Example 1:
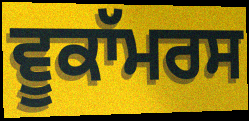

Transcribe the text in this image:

ਵੂਕਾੱਮਰਸ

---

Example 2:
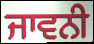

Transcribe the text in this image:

ਜਾਵਨੀ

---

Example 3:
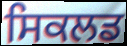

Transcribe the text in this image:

ਸਿਕਲਡ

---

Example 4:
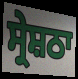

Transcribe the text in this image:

ਸ੍ਰੇਸ਼ਠਾ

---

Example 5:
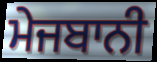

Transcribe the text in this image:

ਮੇਜਬਾਨੀ